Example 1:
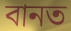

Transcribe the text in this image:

বানত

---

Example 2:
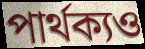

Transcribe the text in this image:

পাৰ্থক্যও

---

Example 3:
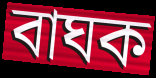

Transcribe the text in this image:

বাঘক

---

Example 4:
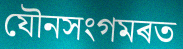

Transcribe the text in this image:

যৌনসংগমৰত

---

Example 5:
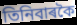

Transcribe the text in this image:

তিনিবাৰকৈ